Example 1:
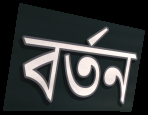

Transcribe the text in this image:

বৰ্তন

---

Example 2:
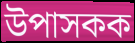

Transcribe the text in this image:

উপাসকক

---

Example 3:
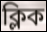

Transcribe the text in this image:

ক্লিক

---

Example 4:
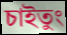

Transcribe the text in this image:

চাইতুং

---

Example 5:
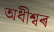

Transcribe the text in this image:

অধীশ্বৰ